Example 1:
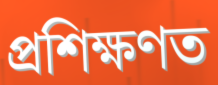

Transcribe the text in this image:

প্ৰশিক্ষণত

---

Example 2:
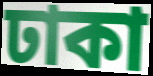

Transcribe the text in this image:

ঢাকা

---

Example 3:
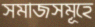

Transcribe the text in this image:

সমাজসমূহে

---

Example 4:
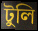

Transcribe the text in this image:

টুলি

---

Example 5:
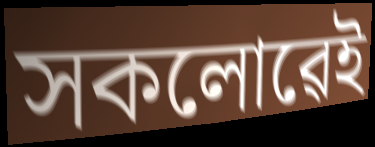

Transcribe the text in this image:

সকলোৱেই